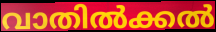
വാതിൽക്കൽ